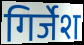
गिर्जेश